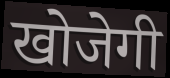
खोजेगी